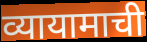
व्यायामाची